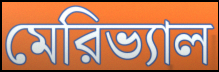
মেরিভ্যাল